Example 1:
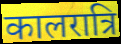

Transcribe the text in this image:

कालरात्रि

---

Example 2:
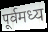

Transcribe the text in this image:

पूर्वमध्य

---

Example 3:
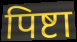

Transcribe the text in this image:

पिष्टा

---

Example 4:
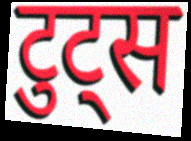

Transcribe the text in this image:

टुट्स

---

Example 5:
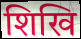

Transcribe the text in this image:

शिखि